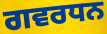
ਗਵਰਧਨ